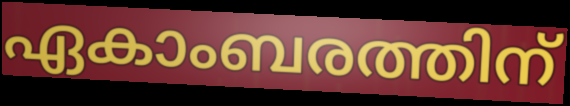
ഏകാംബരത്തിന്